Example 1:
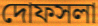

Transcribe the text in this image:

দোফসলা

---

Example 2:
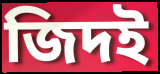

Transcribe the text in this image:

জিদই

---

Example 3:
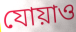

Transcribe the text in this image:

যোয়াও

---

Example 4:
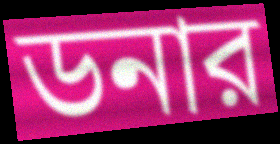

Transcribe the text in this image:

ডনার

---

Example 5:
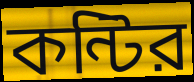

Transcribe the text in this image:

কন্টির